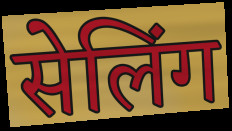
सेलिंग